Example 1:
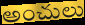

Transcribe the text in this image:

అంచులు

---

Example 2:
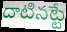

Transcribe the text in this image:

దాటినట్టే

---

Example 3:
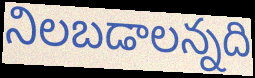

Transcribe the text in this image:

నిలబడాలన్నది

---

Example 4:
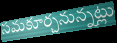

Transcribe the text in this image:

సమకూర్చనున్నట్లు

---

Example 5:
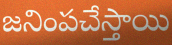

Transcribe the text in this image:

జనింపచేస్తాయి